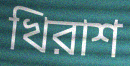
খিরাশ